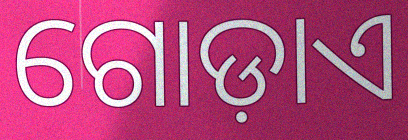
ଗୋଡ଼ାଏ